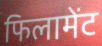
फिलामेंट